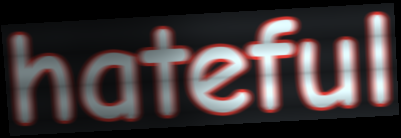
hateful